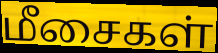
மீசைகள்